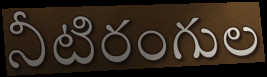
నీటిరంగుల